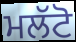
ਮਲੱਟੋ